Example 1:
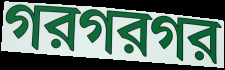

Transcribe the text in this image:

গরগরগর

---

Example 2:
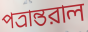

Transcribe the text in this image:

পত্রান্তরাল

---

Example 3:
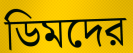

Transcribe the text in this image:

ডিমদের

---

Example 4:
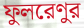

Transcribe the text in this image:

ফুলরেণুর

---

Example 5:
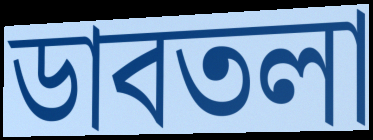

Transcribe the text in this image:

ডাবতলা